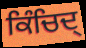
ਕਿੰਚਿਦ੍